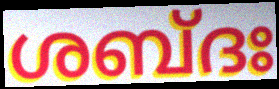
ശബ്ദഃ